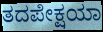
ತದಪೇಕ್ಷಯಾ